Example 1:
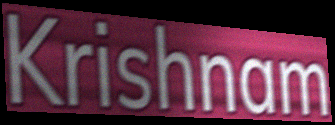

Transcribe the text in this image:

Krishnam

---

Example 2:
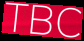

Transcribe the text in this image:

TBC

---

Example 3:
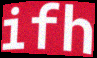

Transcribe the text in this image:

ifh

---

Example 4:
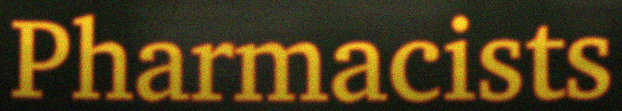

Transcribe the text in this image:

Pharmacists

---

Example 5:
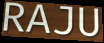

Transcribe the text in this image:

RAJU